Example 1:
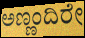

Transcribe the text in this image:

ಅಣ್ಣಂದಿರೇ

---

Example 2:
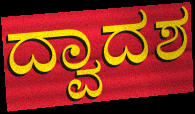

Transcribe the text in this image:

ದ್ವಾದಶ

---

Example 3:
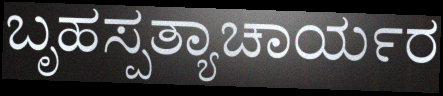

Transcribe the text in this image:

ಬೃಹಸ್ಪತ್ಯಾಚಾರ್ಯರ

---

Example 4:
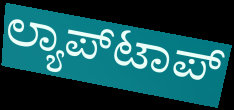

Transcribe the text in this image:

ಲ್ಯಾಪ್‍ಟಾಪ್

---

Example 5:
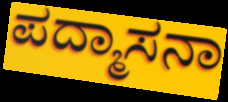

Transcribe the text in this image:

ಪದ್ಮಾಸನಾ